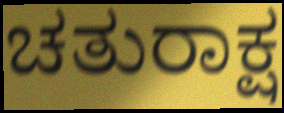
ಚತುರಾಕ್ಷ